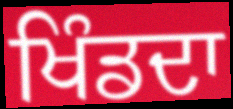
ਖਿੰਡਦਾ